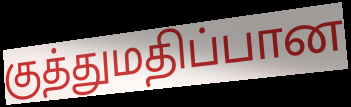
குத்துமதிப்பான